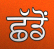
ਛੱਡੋਂ